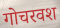
गोचरवश